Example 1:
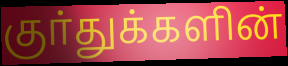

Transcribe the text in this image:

குர்துக்களின்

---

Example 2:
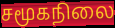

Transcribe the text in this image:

சமூகநிலை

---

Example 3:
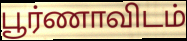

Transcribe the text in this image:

பூர்ணாவிடம்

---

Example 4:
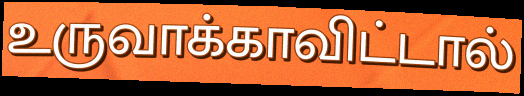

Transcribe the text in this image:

உருவாக்காவிட்டால்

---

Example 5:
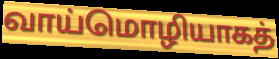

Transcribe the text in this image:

வாய்மொழியாகத்